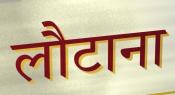
लौटाना